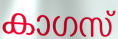
കാഗസ്